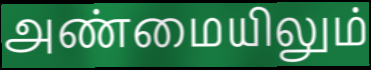
அண்மையிலும்